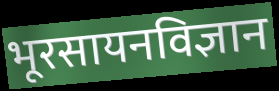
भूरसायनविज्ञान